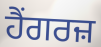
ਹੈਂਗਰਜ਼